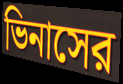
ভিনাসের